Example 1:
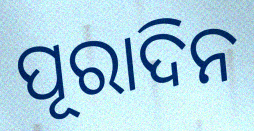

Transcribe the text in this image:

ପୂରାଦିନ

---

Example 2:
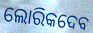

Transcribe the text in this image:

ଲୋରିକଦେବ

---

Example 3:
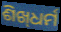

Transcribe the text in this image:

ଶିଖ୍‌ଧର୍ମ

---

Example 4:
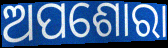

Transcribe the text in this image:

ଅପଶୋରା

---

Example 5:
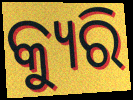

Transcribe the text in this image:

କ୍ୟୁରି